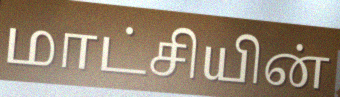
மாட்சியின்